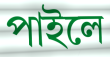
পাইলে